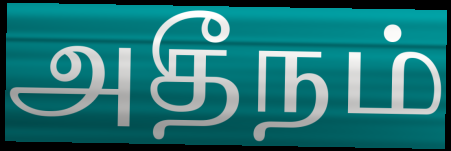
அதீநம்